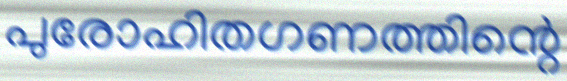
പുരോഹിതഗണത്തിന്റെ